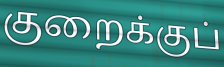
குறைக்குப்